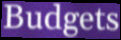
Budgets